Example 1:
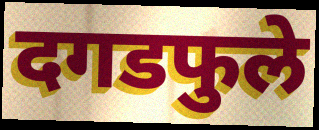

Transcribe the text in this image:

दगडफुले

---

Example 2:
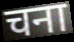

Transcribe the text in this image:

चना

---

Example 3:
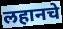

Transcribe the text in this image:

लहानचे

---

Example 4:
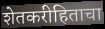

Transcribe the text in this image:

शेतकरीहिताचा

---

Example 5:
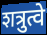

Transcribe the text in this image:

शत्रुत्वे